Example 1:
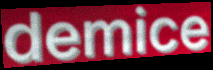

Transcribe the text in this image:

demice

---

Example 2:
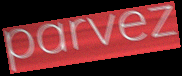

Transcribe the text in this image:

parvez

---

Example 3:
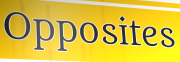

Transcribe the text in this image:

Opposites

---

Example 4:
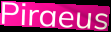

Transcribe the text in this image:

Piraeus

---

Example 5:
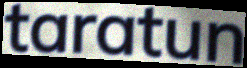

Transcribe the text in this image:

taratun